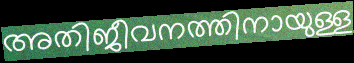
അതിജീവനത്തിനായുള്ള